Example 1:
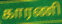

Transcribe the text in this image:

காரணி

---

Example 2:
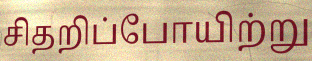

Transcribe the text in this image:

சிதறிப்போயிற்று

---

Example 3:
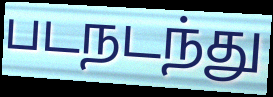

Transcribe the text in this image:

படநடந்து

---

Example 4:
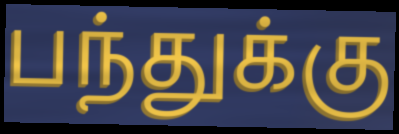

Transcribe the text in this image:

பந்துக்கு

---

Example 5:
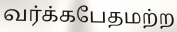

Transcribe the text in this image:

வர்க்கபேதமற்ற